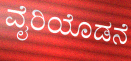
ವೈರಿಯೊಡನೆ